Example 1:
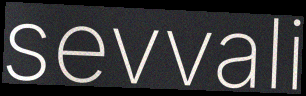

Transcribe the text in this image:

sevvali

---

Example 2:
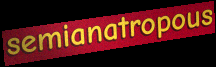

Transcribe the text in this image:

semianatropous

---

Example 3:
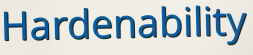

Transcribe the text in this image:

Hardenability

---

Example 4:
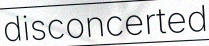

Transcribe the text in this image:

disconcerted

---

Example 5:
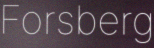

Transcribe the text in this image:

Forsberg